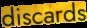
discards